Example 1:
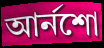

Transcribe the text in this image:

আর্নশো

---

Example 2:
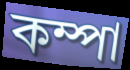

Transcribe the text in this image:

কম্পা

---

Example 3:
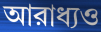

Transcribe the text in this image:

আরাধ্যও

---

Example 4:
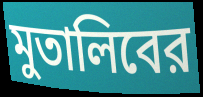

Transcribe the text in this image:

মুতালিবের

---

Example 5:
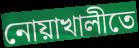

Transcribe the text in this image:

নোয়াখালীতে